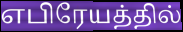
எபிரேயத்தில்